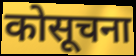
कोसूचना